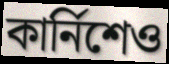
কার্নিশেও